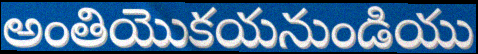
అంతియొకయనుండియు